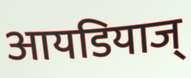
आयडियाज्